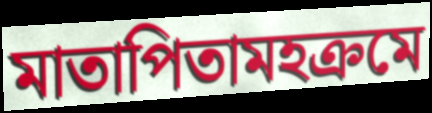
মাতাপিতামহক্রমে